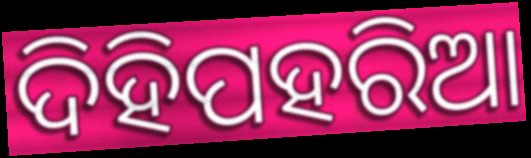
ଦିହିପହରିଆ